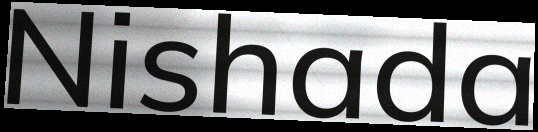
Nishada